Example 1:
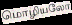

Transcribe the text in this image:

மொழியலோ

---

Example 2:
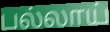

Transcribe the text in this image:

பல்லாய்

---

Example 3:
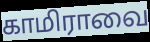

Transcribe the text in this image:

காமிராவை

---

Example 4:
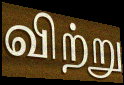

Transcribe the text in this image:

விற்று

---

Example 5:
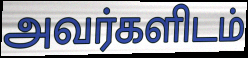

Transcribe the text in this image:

அவர்களிடம்